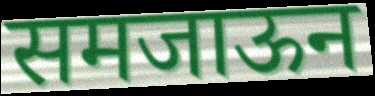
समजाऊन